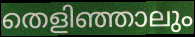
തെളിഞ്ഞാലും